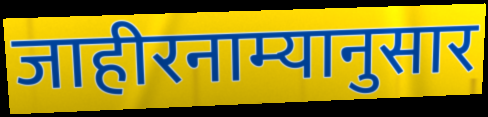
जाहीरनाम्यानुसार